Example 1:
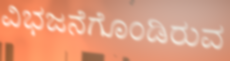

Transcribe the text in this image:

ವಿಭಜನೆಗೊಂಡಿರುವ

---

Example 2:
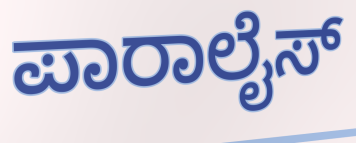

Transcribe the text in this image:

ಪಾರಾಲೈಸ್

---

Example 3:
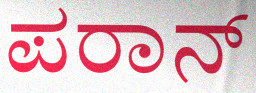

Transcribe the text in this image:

ಪರಾನ್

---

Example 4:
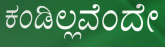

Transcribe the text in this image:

ಕಂಡಿಲ್ಲವೆಂದೇ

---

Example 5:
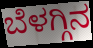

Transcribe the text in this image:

ಬೆಳಗ್ಗಿನ